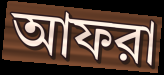
আফরা